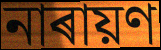
নাৰায়ণ